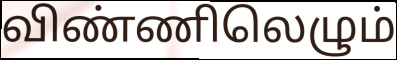
விண்ணிலெழும்